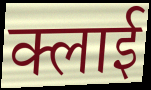
क्लाई